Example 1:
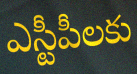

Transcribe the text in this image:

ఎస్టీపీలకు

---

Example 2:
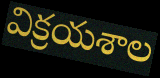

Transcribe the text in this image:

విక్రయశాల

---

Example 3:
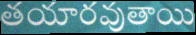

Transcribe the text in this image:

తయారవుతాయి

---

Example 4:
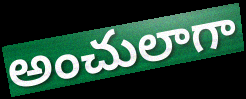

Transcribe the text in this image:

అంచులాగా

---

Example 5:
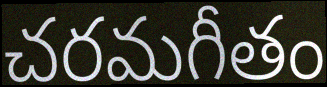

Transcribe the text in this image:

చరమగీతం